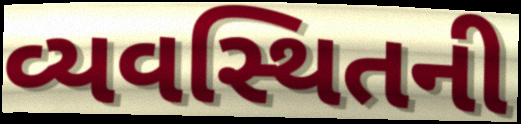
વ્યવસ્થિતની